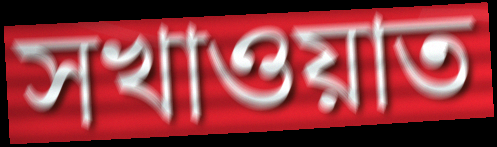
সখাওয়াত